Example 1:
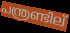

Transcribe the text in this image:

പന്ത്രണ്ടില്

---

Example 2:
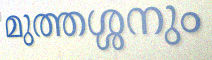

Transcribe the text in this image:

മുത്തശ്ശനും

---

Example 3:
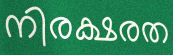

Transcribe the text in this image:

നിരക്ഷരത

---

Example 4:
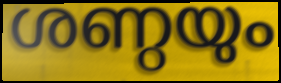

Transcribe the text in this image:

ശണ്ഠയും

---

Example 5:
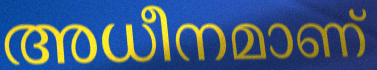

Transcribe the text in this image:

അധീനമാണ്